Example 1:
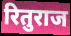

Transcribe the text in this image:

रितुराज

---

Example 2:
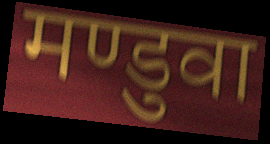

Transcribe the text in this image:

मण्डुवा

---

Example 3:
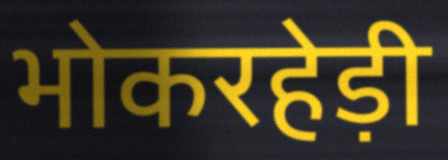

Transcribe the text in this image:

भोकरहेड़ी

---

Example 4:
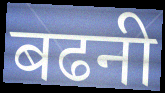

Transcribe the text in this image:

बढनी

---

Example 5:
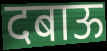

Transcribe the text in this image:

दबाऊ